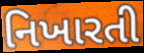
નિખારતી